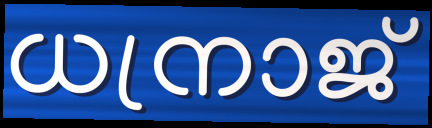
ധന്രാജ്